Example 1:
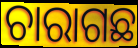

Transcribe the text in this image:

ଚାରାଗଛ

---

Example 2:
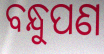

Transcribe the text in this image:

ବନ୍ଧୁପଣ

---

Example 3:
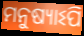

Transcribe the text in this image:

ମନୁଷ୍ୟାଽପି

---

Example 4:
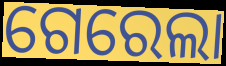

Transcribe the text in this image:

ଗେରେଲା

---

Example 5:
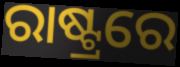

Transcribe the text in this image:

ରାଷ୍ଟ୍ରରେ